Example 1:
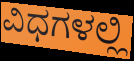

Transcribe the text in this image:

ವಿಧಗಳಲ್ಲಿ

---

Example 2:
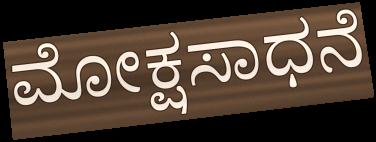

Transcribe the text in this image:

ಮೋಕ್ಷಸಾಧನೆ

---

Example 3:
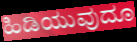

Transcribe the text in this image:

ಹಿಡಿಯುವುದೂ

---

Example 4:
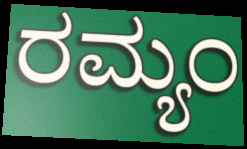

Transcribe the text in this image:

ರಮ್ಯಂ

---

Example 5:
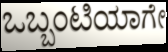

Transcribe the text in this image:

ಒಬ್ಬಂಟಿಯಾಗೇ